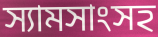
স্যামসাংসহ